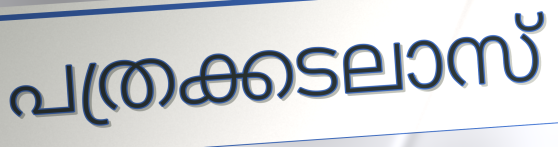
പത്രക്കടലാസ്